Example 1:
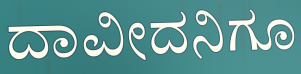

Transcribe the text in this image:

ದಾವೀದನಿಗೂ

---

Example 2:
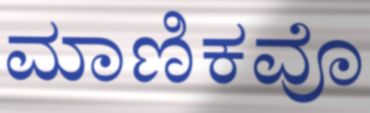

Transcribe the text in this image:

ಮಾಣಿಕವೊ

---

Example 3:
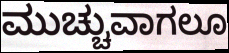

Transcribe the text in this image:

ಮುಚ್ಚುವಾಗಲೂ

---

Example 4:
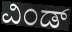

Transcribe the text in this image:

ವಿಂಡ್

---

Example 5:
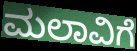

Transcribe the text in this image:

ಮಲಾವಿಗೆ